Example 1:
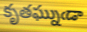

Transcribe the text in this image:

కృతఘ్నుఁడా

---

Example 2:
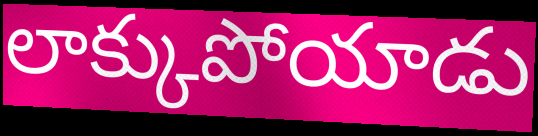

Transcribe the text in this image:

లాక్కుపోయాడు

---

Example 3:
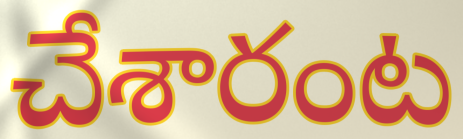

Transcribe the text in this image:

చేశారంట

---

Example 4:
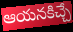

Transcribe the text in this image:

ఆయనకిచ్చే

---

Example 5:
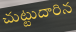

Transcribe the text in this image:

చుట్టుదారిన